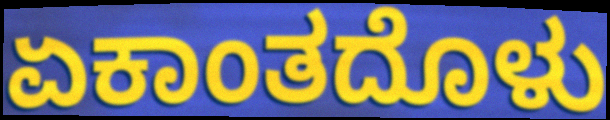
ಏಕಾಂತದೊಳು